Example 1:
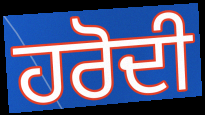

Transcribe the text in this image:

ਹਰੋਦੀ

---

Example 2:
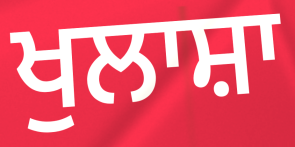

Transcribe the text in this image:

ਖੁਲਾਸ਼ਾ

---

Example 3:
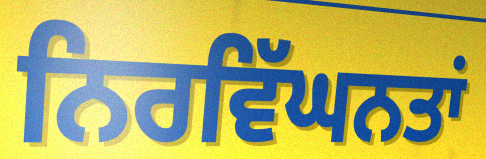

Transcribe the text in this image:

ਨਿਰਵਿੱਘਨਤਾਂ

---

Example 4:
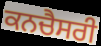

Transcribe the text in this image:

ਕਨਚੈਸਰੀ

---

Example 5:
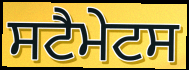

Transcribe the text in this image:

ਸਟੈਮੇਟਸ